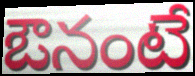
ఔనంటే